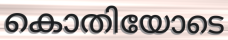
കൊതിയോടെ